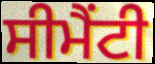
ਸੀਮੈਂਟੀ